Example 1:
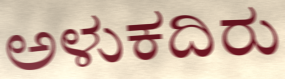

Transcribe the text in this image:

ಅಳುಕದಿರು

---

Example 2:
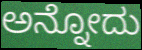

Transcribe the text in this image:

ಅನ್ನೋದು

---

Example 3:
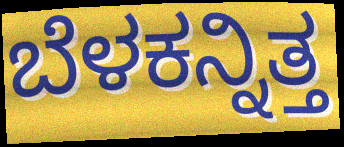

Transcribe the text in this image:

ಬೆಳಕನ್ನಿತ್ತ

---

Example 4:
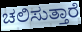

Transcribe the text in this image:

ಚಲಿಸುತ್ತಾರೆ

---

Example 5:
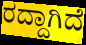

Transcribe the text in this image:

ರದ್ದಾಗಿದೆ